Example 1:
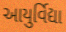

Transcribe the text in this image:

આયુર્વિદ્યા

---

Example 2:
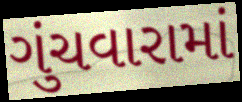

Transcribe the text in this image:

ગુંચવારામાં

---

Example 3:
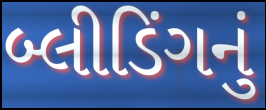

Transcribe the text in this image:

બ્લીડિંગનું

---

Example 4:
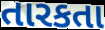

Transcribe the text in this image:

તારકતા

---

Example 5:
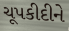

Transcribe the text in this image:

ચૂપકીદીને